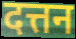
दत्तन